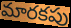
మారకపు